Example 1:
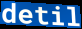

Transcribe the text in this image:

detil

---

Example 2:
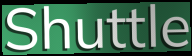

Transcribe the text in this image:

Shuttle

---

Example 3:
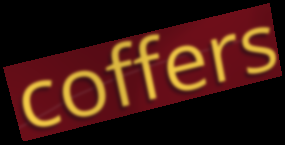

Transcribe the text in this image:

coffers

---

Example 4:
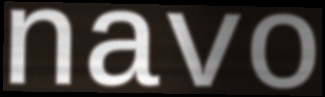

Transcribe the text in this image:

navo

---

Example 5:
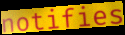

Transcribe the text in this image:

notifies